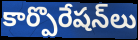
కార్పొరేషన్‌లు